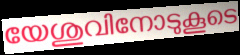
യേശുവിനോടുകൂടെ